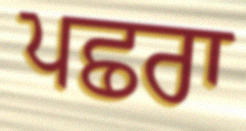
ਪਛਰਾ